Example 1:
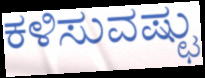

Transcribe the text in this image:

ಕಳಿಸುವಷ್ಟು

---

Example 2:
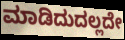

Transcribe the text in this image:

ಮಾಡಿದುದಲ್ಲದೇ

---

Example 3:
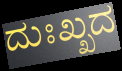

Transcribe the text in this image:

ದುಃಖ್ಖದ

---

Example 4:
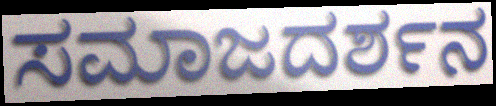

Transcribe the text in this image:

ಸಮಾಜದರ್ಶನ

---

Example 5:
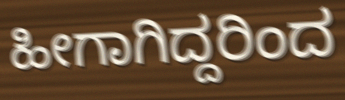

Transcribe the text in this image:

ಹೀಗಾಗಿದ್ದರಿಂದ